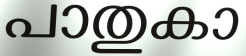
പാതുകാ